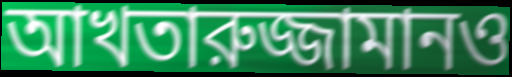
আখতারুজ্জামানও